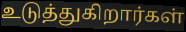
உடுத்துகிறார்கள்